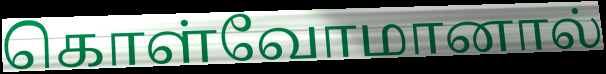
கொள்வோமானால்